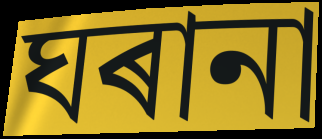
ঘৰানা